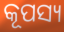
କୂପସ୍ୟ